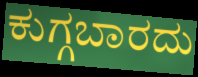
ಕುಗ್ಗಬಾರದು